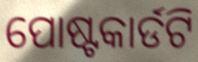
ପୋଷ୍ଟକାର୍ଡଟି